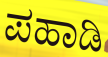
ಪಹಾಡಿ